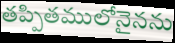
తప్పితములోనైనను